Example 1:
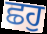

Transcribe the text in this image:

ਛਹੁ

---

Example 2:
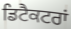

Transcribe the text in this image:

ਡਿਟੈਕਟਰਾਂ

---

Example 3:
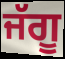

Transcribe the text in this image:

ਜੱਗੂ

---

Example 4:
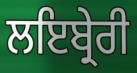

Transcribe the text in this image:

ਲਇਬ੍ਰੇਰੀ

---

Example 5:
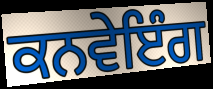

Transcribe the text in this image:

ਕਨਵੇਇੰਗ